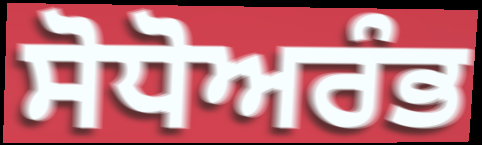
ਸੋਧੋਅਰੰਭ